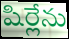
షిర్లేను